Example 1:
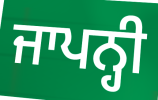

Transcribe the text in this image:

ਜਾਪਨ੍ਹੀ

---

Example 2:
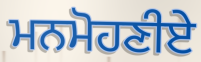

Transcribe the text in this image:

ਮਨਮੋਹਣੀਏ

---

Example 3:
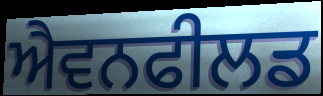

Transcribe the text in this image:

ਐਵਨਫੀਲਡ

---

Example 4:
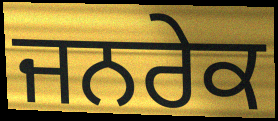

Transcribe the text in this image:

ਜਨਰੇਕ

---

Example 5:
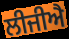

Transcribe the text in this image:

ਲੀਜੀਐ